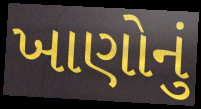
ખાણોનું